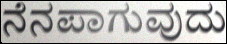
ನೆನಪಾಗುವುದು